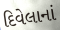
દિવેલાનાં